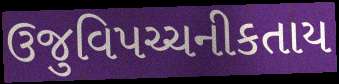
ઉજુવિપચ્ચનીકતાય